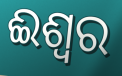
ଈଶ୍ବର